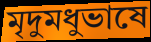
মৃদুমধুভাষে